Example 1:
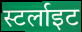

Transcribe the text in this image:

स्टर्लाइट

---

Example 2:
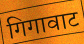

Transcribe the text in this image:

गिगावाट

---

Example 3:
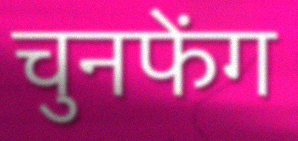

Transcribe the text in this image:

चुनफेंग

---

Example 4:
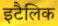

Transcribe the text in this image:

इटैलिक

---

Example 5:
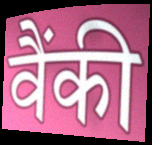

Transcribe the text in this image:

वैंकी